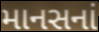
માનસનાં